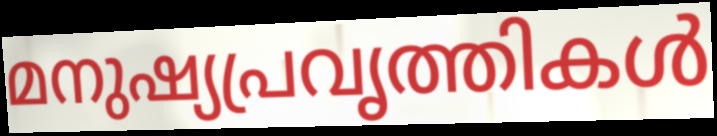
മനുഷ്യപ്രവൃത്തികൾ